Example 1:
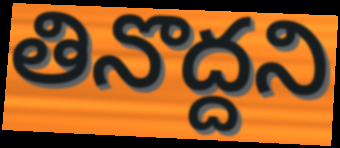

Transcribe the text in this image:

తినొద్దని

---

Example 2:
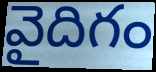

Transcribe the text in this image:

వైదిగం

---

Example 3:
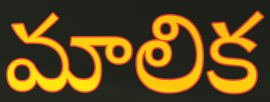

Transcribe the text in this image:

మాలిక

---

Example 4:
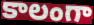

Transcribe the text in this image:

కాలంగా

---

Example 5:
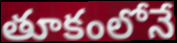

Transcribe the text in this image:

తూకంలోనే